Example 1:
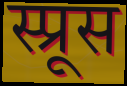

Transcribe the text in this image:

स्प्रूस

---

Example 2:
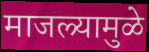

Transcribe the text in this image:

माजल्यामुळे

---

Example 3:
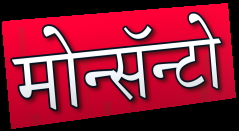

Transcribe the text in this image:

मोन्सॅन्टो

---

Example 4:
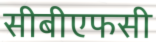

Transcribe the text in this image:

सीबीएफसी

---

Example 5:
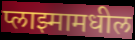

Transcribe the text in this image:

प्लाझ्मामधील